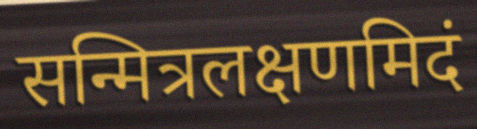
सन्मित्रलक्षणमिदं